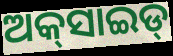
ଅକ୍‌ସାଇଡ୍